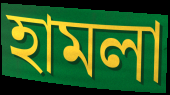
হামলা